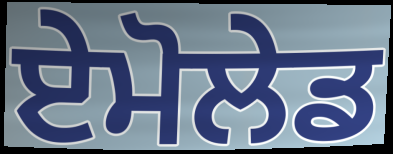
ਏਮੋਲੇਡ